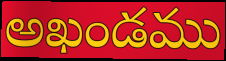
అఖండము